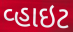
વ્હાઇટ